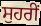
ਸੁਹਰੀਂ